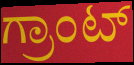
ಗ್ರಾಂಟ್